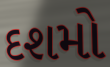
દશમો